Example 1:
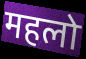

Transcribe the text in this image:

महलो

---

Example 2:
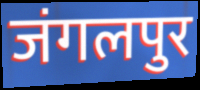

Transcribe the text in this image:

जंगलपुर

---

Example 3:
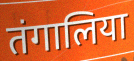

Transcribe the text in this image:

तंगालिया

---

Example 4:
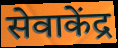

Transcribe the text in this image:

सेवाकेंद्र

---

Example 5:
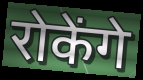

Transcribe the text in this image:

रोकेंगे